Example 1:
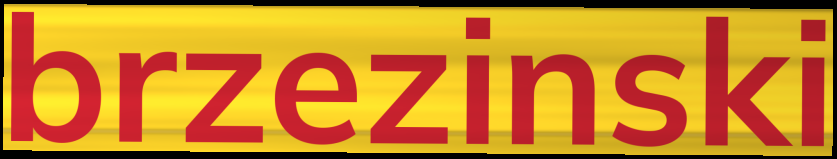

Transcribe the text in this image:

brzezinski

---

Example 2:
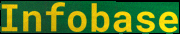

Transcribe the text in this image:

Infobase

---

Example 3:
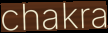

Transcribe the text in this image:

chakra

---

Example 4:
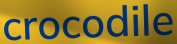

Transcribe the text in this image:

crocodile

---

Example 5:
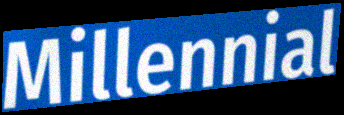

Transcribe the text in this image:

Millennial